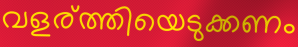
വളര്ത്തിയെടുക്കണം